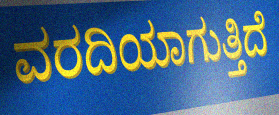
ವರದಿಯಾಗುತ್ತಿದೆ